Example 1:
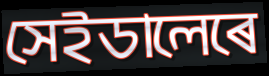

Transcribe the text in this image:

সেইডালেৰে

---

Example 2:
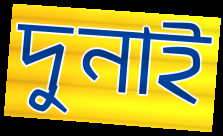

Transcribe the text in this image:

দুনাই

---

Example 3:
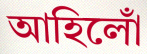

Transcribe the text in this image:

আহিলোঁ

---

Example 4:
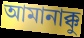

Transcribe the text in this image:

আমানাক্কু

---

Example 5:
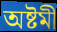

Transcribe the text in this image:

অষ্টমী